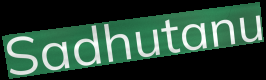
Sadhutanu